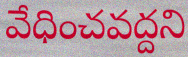
వేధించవద్దని